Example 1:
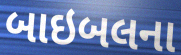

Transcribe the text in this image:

બાઇબલના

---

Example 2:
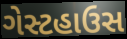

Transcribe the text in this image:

ગેસ્ટહાઉસ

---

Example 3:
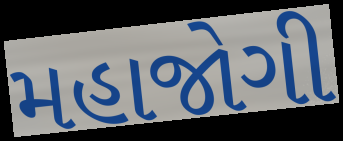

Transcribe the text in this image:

મહાજોગી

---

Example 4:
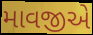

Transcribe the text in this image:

માવજીએ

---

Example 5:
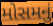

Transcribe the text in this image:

મોસમનું